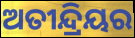
ଅତୀନ୍ଦ୍ରିୟର